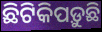
ଛିଟିକିପଡ଼ୁଛି